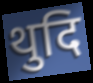
थुदि